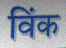
विंक